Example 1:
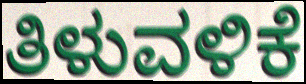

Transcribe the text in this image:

ತಿಳುವಳಿಕೆ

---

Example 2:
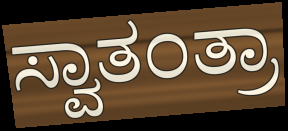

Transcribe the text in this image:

ಸ್ವಾತಂತ್ರಾ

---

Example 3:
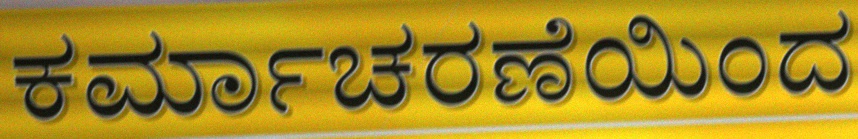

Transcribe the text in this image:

ಕರ್ಮಾಚರಣೆಯಿಂದ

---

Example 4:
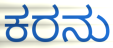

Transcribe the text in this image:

ಕರನು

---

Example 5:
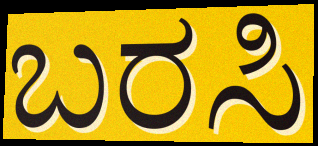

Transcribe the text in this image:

ಬರಸಿ